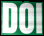
DOI